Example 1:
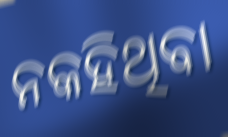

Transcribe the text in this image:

ନକହିଥିବା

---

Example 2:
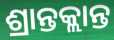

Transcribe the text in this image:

ଶ୍ରାନ୍ତକ୍ଲାନ୍ତ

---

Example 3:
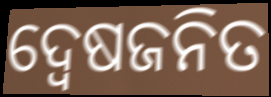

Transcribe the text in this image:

ଦ୍ଵେଷଜନିତ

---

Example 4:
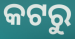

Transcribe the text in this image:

କଟରୁ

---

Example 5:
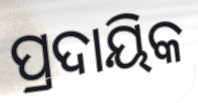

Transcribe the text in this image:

ପ୍ରଦାୟିକ